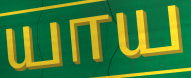
யாய